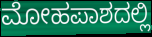
ಮೋಹಪಾಶದಲ್ಲಿ